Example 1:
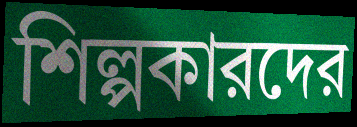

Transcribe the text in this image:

শিল্পকারদের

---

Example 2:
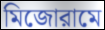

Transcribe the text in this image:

মিজোরামে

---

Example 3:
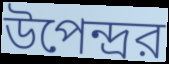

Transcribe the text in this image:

উপেন্দ্রর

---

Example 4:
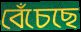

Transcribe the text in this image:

বেঁচেছে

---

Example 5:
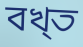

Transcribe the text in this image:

বখ্ত